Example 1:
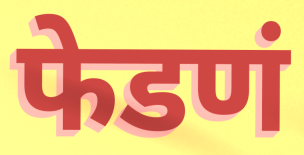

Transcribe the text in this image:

फेडणं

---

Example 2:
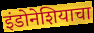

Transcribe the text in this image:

इंडोनेशियाचा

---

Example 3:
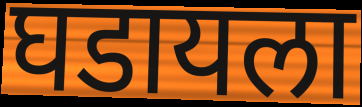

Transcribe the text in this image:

घडायला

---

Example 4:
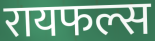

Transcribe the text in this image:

रायफल्स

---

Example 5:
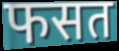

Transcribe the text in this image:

फसत